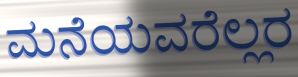
ಮನೆಯವರೆಲ್ಲರ